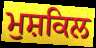
ਮੁਸ਼ਕਿਲ